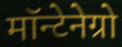
मॉन्टेनेग्रो